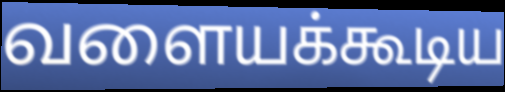
வளையக்கூடிய